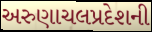
અરુણાચલપ્રદેશની